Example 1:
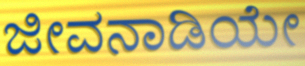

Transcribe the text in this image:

ಜೀವನಾಡಿಯೇ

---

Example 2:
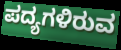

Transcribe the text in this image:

ಪದ್ಯಗಳಿರುವ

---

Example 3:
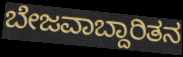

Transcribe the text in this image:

ಬೇಜವಾಬ್ದಾರಿತನ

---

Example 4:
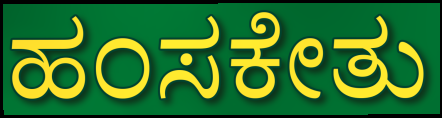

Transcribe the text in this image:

ಹಂಸಕೇತು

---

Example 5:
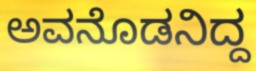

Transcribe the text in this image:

ಅವನೊಡನಿದ್ದ